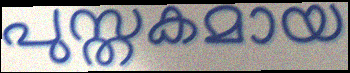
പുസ്തകമായ